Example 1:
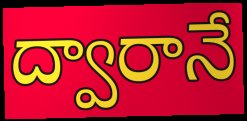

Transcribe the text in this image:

ద్వారానే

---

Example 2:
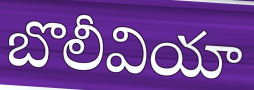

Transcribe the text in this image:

బొలీవియా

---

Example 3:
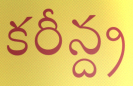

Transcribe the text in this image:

కరీన్ద్ర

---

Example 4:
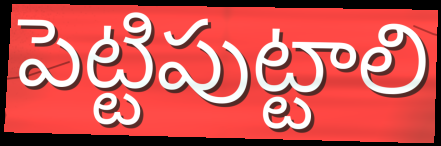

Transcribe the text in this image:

పెట్టిపుట్టాలి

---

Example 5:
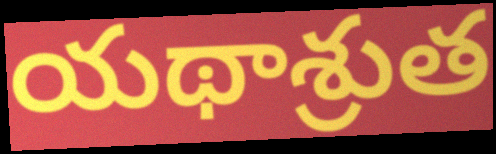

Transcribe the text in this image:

యథాశ్రుత